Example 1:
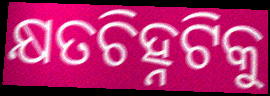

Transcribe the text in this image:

କ୍ଷତଚିହ୍ନଟିକୁ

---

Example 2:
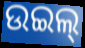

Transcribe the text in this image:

ଉଇଲ୍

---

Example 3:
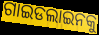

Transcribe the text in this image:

ଗାଇଡଲାଇନକୁ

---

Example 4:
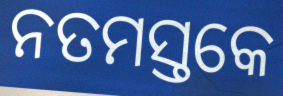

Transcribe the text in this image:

ନତମସ୍ତକେ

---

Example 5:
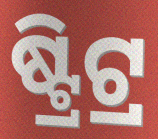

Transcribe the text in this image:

ଷ୍ଟ୍ରିଟ୍ର